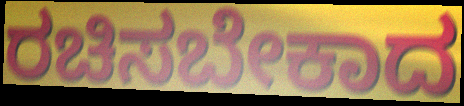
ರಚಿಸಬೇಕಾದ